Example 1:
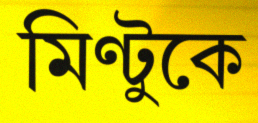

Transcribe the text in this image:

মিণ্টুকে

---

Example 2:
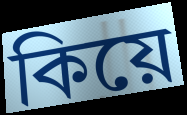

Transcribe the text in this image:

কিয়ে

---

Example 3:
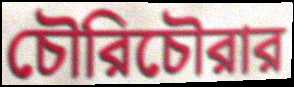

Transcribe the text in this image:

চৌরিচৌরার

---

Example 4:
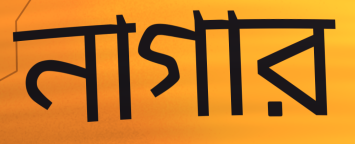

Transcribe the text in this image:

নাগার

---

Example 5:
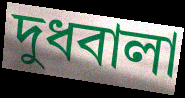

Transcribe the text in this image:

দুধবালা